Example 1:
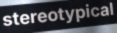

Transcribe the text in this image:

stereotypical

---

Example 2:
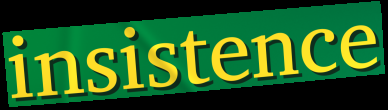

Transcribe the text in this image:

insistence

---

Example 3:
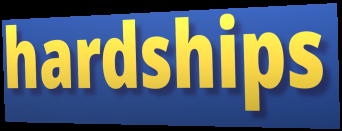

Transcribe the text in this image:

hardships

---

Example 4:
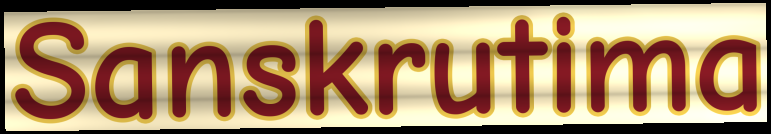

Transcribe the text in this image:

Sanskrutima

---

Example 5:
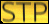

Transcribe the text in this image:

STP